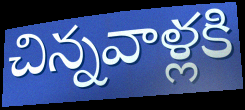
చిన్నవాళ్లకి